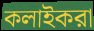
কলাইকরা